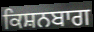
ਕਿਸ਼ਨਬਾਗ